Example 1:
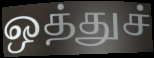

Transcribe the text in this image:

ஒத்துச்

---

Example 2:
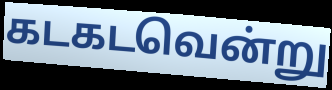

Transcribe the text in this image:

கடகடவென்று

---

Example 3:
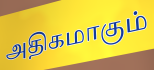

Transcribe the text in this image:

அதிகமாகும்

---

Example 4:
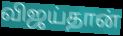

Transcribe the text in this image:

விஜய்தான்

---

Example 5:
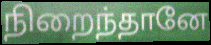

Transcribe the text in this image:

நிறைந்தானே